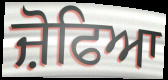
ਜ਼ੋਫਿਆ